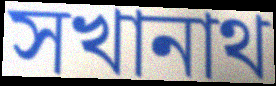
সখানাথ